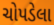
ચોપડેલા